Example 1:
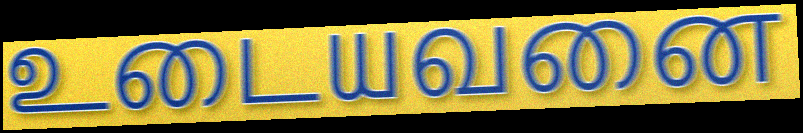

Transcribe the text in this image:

உடையவனை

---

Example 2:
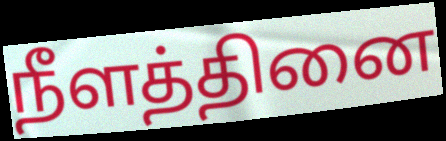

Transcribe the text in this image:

நீளத்தினை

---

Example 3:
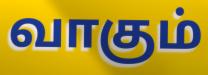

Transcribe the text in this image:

வாகும்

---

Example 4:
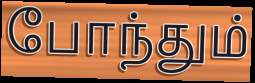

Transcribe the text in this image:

போந்தும்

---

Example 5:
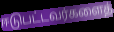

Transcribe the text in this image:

ஈடுபட்டவர்களைத்